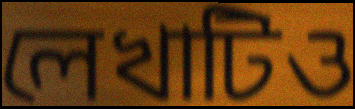
লেখাটিও